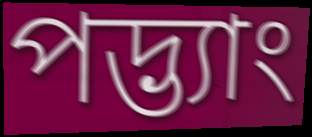
পদ্ভ্যাং